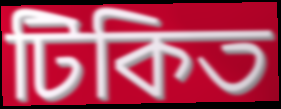
টিকিত